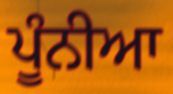
ਪੂੰਨੀਆ